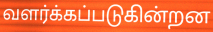
வளர்க்கப்படுகின்றன